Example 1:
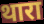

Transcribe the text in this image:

थारा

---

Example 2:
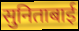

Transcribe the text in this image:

सुनिताबाई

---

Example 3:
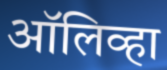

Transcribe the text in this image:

ऑलिव्हा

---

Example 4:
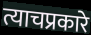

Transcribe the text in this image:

त्याचप्रकारे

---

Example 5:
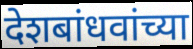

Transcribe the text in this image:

देशबांधवांच्या